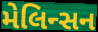
મેલિન્સન